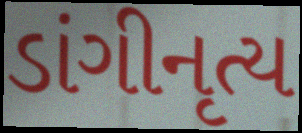
ડાંગીનૃત્ય